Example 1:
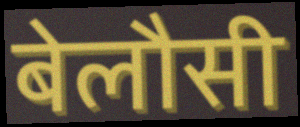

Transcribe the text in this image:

बेलौसी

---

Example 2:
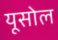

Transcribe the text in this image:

यूसोल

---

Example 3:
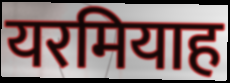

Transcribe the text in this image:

यरमियाह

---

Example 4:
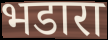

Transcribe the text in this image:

भडारा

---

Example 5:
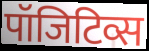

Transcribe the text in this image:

पॉजिटिव्स